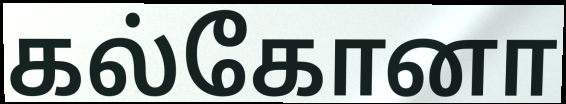
கல்கோனா